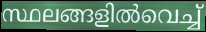
സ്ഥലങ്ങളിൽവെച്ച്